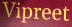
Vipreet